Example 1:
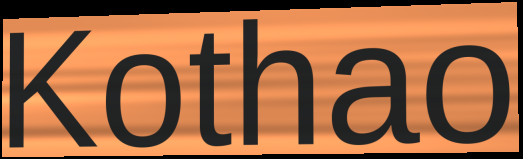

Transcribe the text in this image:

Kothao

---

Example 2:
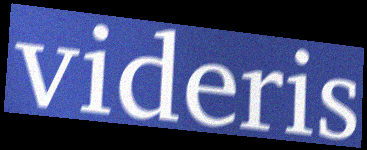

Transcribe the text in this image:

videris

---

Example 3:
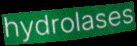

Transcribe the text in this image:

hydrolases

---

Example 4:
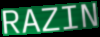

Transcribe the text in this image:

RAZIN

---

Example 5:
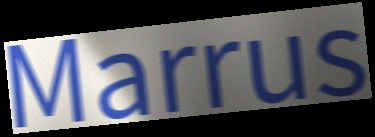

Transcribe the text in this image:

Marrus